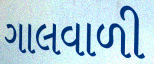
ગાલવાળી